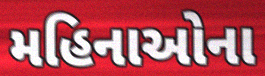
મહિનાઓના